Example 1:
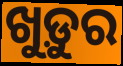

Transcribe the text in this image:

ଖୁଡ଼ୁର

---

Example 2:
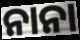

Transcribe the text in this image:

ନାନା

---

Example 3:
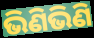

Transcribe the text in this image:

ଭିଣିଭିଣି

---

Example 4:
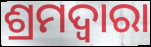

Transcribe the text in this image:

ଶ୍ରମଦ୍ୱାରା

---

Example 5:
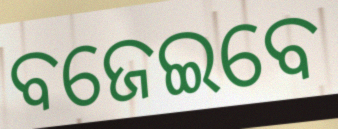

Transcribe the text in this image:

ବଜେଇବେ